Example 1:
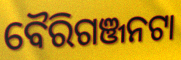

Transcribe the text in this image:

ବୈରିଗଞ୍ଜନଟା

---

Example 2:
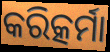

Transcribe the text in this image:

କରିତ୍କର୍ମା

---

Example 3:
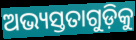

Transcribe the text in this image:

ଅଭ୍ୟସ୍ତତାଗୁଡ଼ିକୁ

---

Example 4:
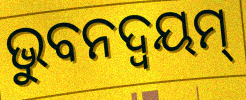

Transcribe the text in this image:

ଭୁବନଦ୍ଵୟମ୍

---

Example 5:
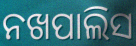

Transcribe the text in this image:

ନଖପାଲିସ